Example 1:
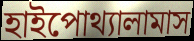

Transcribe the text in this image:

হাইপোথ্যালামাস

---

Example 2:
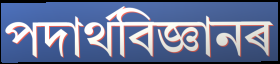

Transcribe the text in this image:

পদাৰ্থবিজ্ঞানৰ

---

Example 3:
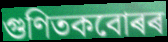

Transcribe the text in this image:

গুণিতকবোৰৰ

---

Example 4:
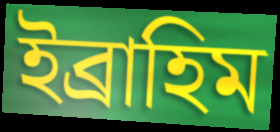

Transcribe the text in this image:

ইব্ৰাহিম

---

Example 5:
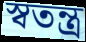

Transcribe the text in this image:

স্বতন্ত্ৰ